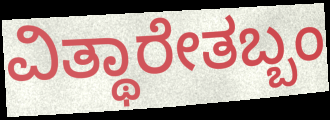
ವಿತ್ಥಾರೇತಬ್ಬಂ